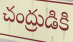
చంద్రుడికి